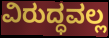
ವಿರುದ್ಧವಲ್ಲ